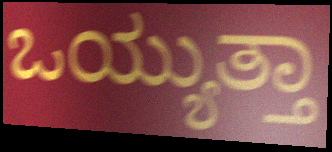
ಒಯ್ಯುತ್ತಾ